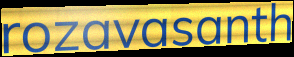
rozavasanth